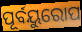
ପୂର୍ବୟୁରୋପ